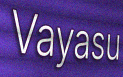
Vayasu